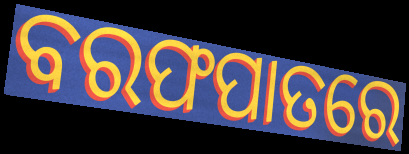
ବରଫପାତରେ